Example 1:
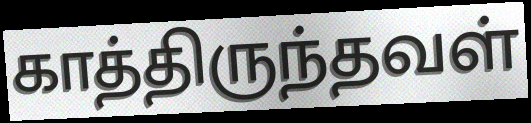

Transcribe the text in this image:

காத்திருந்தவள்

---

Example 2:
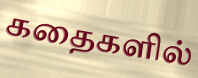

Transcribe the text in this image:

கதைகளில்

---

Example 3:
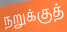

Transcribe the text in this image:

நறுக்குத்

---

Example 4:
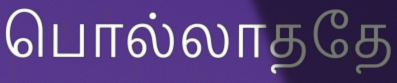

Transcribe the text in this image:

பொல்லாததே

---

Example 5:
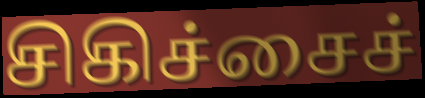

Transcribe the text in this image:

சிகிச்சைச்